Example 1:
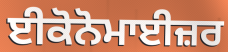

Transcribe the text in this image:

ਈਕੋਨੋਮਾਈਜ਼ਰ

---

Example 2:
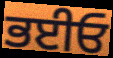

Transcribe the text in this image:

ਭਈਓ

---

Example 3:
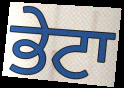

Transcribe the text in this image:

ਭੇਟਾ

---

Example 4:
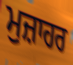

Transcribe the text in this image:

ਮੁਜ਼ਾਹਰ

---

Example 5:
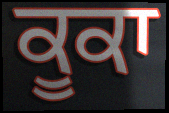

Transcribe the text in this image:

ਕੂਕਾ